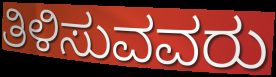
ತಿಳಿಸುವವರು